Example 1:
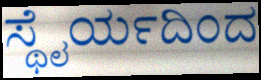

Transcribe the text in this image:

ಸ್ಥೈರ್ಯದಿಂದ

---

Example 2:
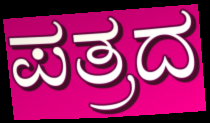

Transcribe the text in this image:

ಪತ್ರದ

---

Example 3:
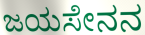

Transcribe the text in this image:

ಜಯಸೇನನ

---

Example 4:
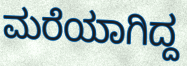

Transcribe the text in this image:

ಮರೆಯಾಗಿದ್ದ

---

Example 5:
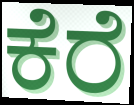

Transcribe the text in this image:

ಕೆರೆ